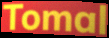
Tomal